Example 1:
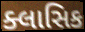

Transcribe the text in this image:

ક્લાસિક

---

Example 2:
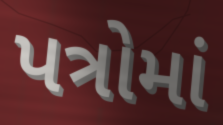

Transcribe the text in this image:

પત્રોમાં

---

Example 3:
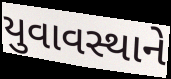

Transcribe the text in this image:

યુવાવસ્થાને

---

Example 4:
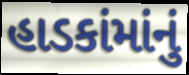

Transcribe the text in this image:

હાડકાંમાંનું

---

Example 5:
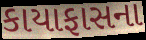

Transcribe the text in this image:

કાયાફાસના